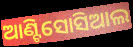
ଆଣ୍ଟିସୋସିଆଲ